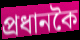
প্ৰধানকৈ